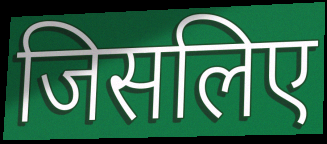
जिसलिए